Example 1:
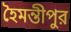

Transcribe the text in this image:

হৈমন্তীপুর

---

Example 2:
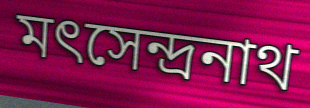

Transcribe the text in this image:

মৎসেন্দ্রনাথ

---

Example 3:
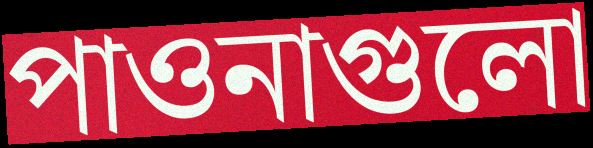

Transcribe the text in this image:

পাওনাগুলো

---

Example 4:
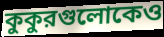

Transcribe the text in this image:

কুকুরগুলোকেও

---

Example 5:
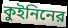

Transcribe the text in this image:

কুইনিনের